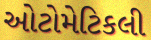
ઓટોમેટિકલી